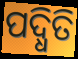
ପଦ୍ଧିତି